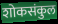
शोकसंकुल